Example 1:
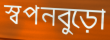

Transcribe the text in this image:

স্বপনবুড়ো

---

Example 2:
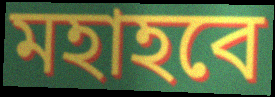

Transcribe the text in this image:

মহাহবে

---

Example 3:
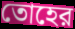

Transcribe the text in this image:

তোহের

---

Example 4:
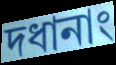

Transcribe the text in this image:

দধানাং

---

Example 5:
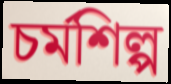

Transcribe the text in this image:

চর্মশিল্প